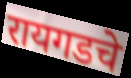
रायगडचे